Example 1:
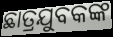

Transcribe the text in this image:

ଛାତ୍ରଯୁବକଙ୍କ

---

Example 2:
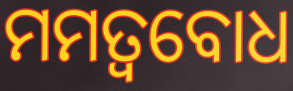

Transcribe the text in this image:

ମମତ୍ବବୋଧ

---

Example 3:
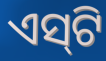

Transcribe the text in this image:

ଏସ୍‌ଟି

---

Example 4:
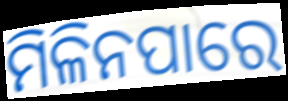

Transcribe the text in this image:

ମିଳିନପାରେ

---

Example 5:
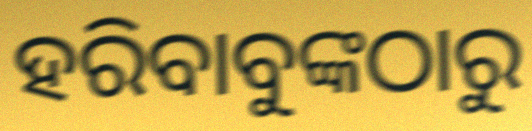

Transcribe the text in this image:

ହରିବାବୁଙ୍କଠାରୁ